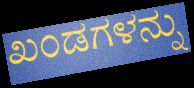
ಖಂಡಗಳನ್ನು